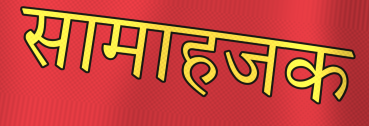
सामाहजक